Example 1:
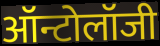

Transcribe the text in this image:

ऑन्टोलॉजी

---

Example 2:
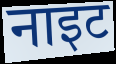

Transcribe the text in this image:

नाइट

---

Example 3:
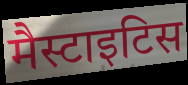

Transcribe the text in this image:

मैस्टाइटिस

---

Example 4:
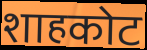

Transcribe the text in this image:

शाहकोट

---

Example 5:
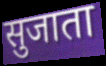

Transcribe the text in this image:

सुजाता